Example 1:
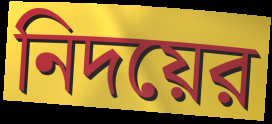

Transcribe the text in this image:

নিদয়ের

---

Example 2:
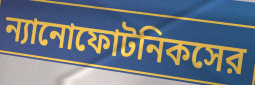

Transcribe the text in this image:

ন্যানোফোটনিকসের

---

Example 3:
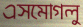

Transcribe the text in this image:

এসমোগলু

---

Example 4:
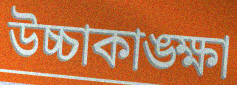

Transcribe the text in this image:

উচ্চাকাঙ্ক্ষা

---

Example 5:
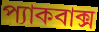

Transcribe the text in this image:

প্যাকবাক্স